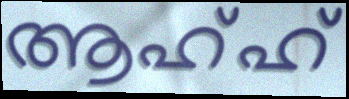
ആഹ്ഹ്